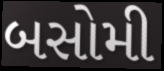
બસોમી